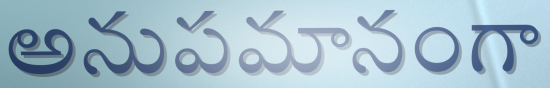
అనుపమానంగా